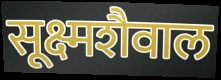
सूक्ष्मशैवाल